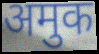
अमुक